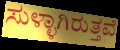
ಸುಳ್ಳಾಗಿರುತ್ತವೆ